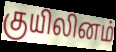
குயிலினம்